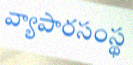
వ్యాపారసంస్థ